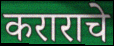
कराराचे